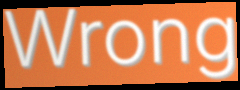
Wrong